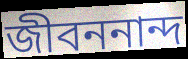
জীবননান্দ